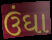
ઉંઘા